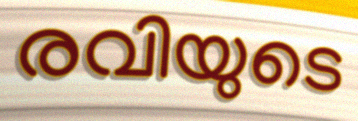
രവിയുടെ